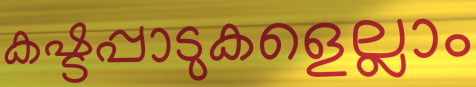
കഷ്ടപ്പാടുകളെല്ലാം